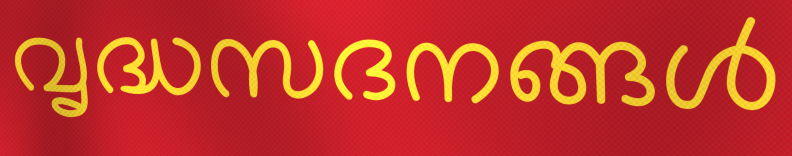
വൃദ്ധസദനങ്ങൾ